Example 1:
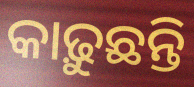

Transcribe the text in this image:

କାଢ଼ୁଛନ୍ତି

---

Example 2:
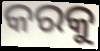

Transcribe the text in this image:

କରକୁ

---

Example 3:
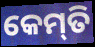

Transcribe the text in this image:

କେମ୍‍ତି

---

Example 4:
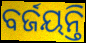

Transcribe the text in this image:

ବର୍ଜୟନ୍ତି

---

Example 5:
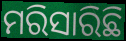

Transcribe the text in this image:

ମରିସାରିଛି